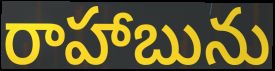
రాహాబును